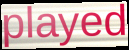
played